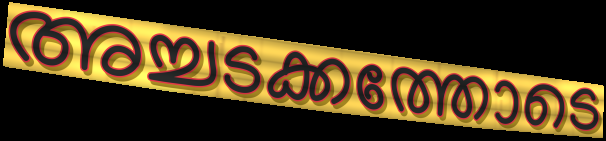
അച്ചടക്കത്തോടെ